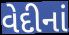
વેદીનાં